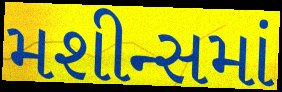
મશીન્સમાં